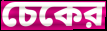
চেকের